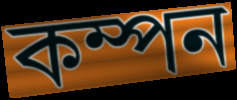
কম্পন